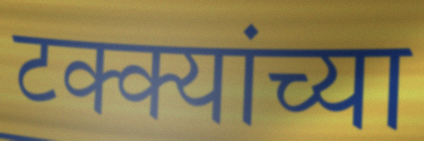
टक्क्यांच्या